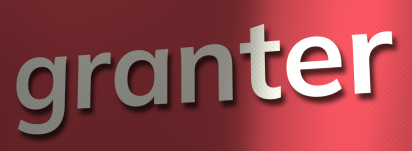
granter